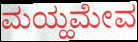
ಮಯ್ಹಮೇವ